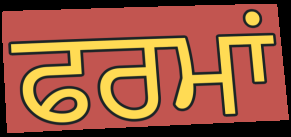
ਫਰਮਾਂ